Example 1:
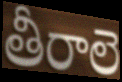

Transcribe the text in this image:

తీరాలె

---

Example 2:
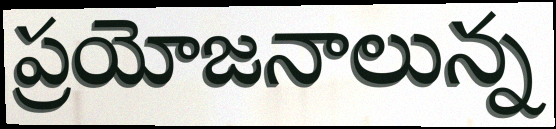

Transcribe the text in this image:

ప్రయోజనాలున్న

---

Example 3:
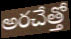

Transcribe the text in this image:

అరచేత్తో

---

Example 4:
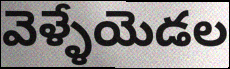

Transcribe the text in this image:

వెళ్ళేయెడల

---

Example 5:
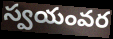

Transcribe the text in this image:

స్వయంవర